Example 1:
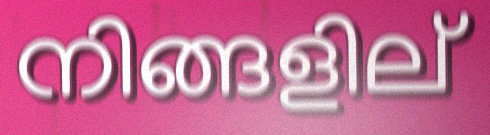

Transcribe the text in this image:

നിങ്ങളില്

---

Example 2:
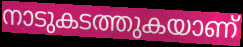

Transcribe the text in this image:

നാടുകടത്തുകയാണ്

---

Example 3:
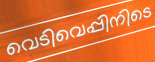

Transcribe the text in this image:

വെടിവെപ്പിനിടെ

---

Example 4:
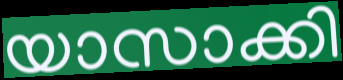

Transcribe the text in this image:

യാസാക്കി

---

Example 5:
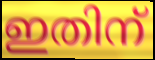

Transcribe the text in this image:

ഇതിന്